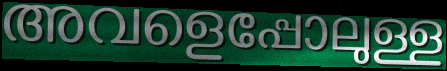
അവളെപ്പോലുള്ള